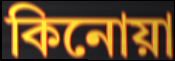
কিনোয়া